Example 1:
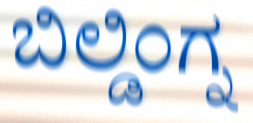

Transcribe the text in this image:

ಬಿಲ್ಡಿಂಗ್ನ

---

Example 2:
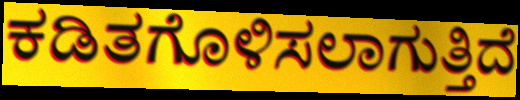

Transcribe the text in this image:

ಕಡಿತಗೊಳಿಸಲಾಗುತ್ತಿದೆ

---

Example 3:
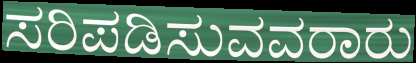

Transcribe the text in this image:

ಸರಿಪಡಿಸುವವರಾರು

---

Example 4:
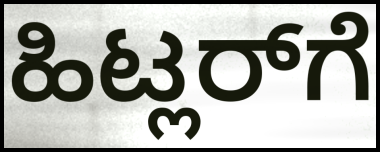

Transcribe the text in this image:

ಹಿಟ್ಲರ್‌ಗೆ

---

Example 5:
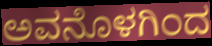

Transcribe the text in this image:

ಅವನೊಳಗಿಂದ